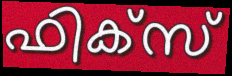
ഫിക്സ്